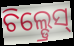
ଚିଲ୍ଡ୍ରେସ୍